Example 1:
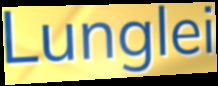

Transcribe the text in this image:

Lunglei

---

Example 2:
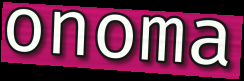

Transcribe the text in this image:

onoma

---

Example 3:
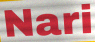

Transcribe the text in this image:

Nari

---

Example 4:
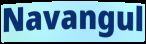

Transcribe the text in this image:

Navangul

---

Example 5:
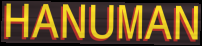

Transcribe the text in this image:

HANUMAN